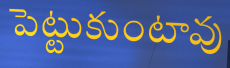
పెట్టుకుంటావు